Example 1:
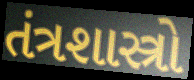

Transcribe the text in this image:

તંત્રશાસ્ત્રો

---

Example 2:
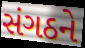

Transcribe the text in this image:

સંગઠને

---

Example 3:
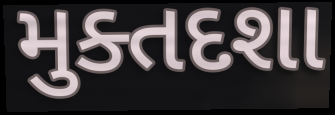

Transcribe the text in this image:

મુક્તદશા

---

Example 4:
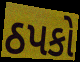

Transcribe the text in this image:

ઠપકો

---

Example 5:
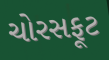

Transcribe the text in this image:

ચોરસફૂટ